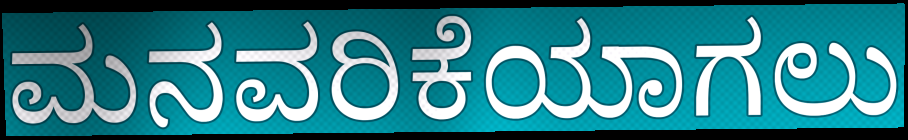
ಮನವರಿಕೆಯಾಗಲು